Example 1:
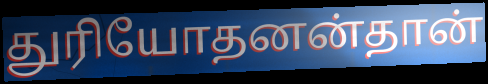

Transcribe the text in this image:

துரியோதனன்தான்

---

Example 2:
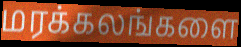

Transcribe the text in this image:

மரக்கலங்களை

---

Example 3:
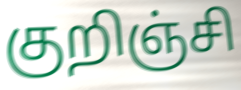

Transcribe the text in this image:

குறிஞ்சி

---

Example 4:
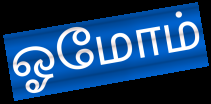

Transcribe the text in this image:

ஓமோம்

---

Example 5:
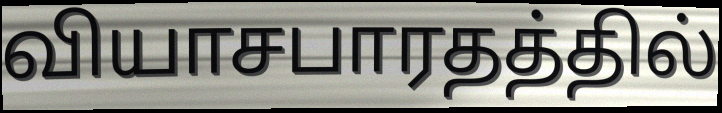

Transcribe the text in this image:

வியாசபாரதத்தில்